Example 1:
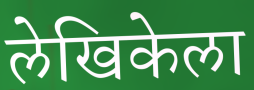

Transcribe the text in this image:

लेखिकेला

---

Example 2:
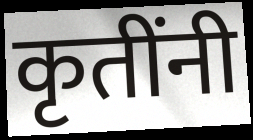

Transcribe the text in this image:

कृतींनी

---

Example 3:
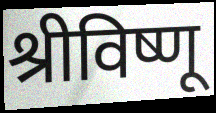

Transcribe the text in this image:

श्रीविष्णू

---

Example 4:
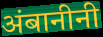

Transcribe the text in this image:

अंबानीनी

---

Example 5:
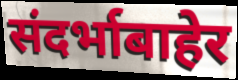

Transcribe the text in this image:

संदर्भाबाहेर